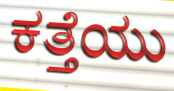
ಕತ್ತೆಯು